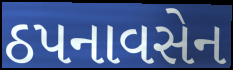
ઠપનાવસેન